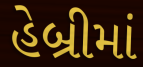
હેબ્રીમાં